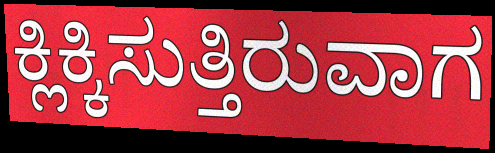
ಕ್ಲಿಕ್ಕಿಸುತ್ತಿರುವಾಗ